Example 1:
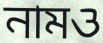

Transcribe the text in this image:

নামও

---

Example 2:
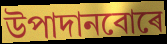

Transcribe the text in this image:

উপাদানবোৰে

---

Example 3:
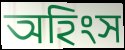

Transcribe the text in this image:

অহিংস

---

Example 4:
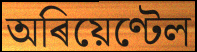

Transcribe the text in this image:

অৰিয়েণ্টেল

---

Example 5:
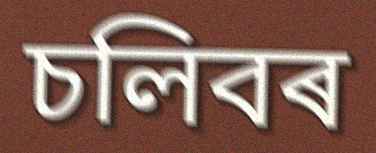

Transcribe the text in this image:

চলিবৰ